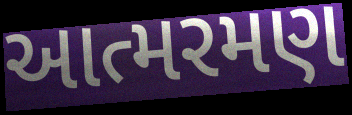
આત્મરમણ